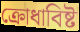
ক্রোধাবিষ্ট